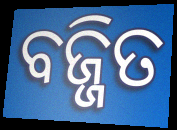
ବଜ୍ଜିତ